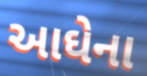
આઘેના